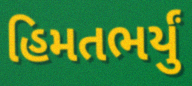
હિમતભર્યું